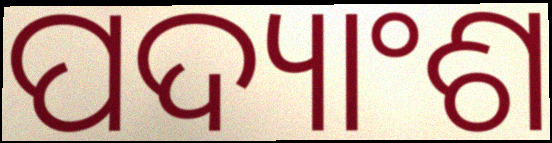
ପଦ୍ୟାଂଶ